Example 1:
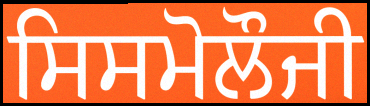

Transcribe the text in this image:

ਸਿਸਮੋਲੌਜੀ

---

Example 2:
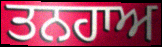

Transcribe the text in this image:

ਤਨਹਾਅ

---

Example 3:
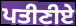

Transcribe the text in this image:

ਪਤੀਣੀਏ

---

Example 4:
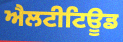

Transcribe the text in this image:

ਐਲਟੀਟਿਊਡ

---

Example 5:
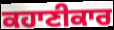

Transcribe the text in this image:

ਕਹਾਣੀਕਾਰ